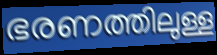
ഭരണത്തിലുള്ള